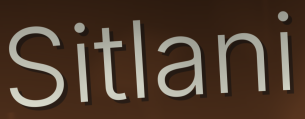
Sitlani